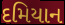
દમિયાન